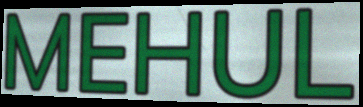
MEHUL